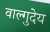
वाल्गुदेय